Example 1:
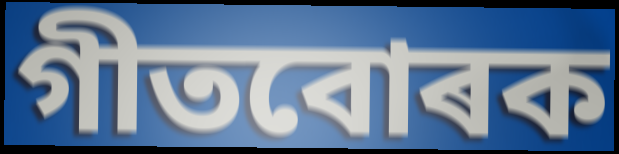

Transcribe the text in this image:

গীতবোৰক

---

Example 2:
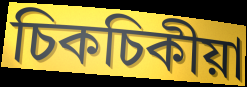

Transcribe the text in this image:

চিকচিকীয়া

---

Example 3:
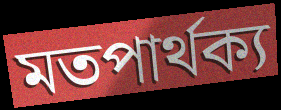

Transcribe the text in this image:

মতপাৰ্থক্য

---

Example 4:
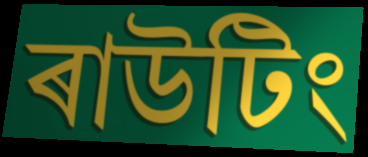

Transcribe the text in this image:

ৰাউটিং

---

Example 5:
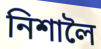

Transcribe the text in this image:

নিশালৈ